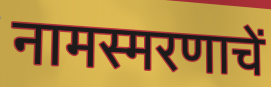
नामस्मरणाचें